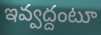
ఇవ్వద్దంటూ